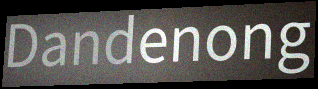
Dandenong